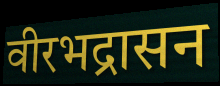
वीरभद्रासन